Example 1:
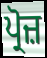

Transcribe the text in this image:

ਪ੍ਰੋਜ਼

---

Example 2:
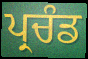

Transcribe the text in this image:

ਪ੍ਰਚੰਡ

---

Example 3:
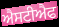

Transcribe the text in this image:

ਐਸਟੀਐਫ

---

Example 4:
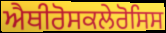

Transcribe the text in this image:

ਐਥੀਰੋਸਕਲੇਰੋਸਿਸ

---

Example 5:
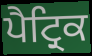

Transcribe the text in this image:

ਪੈਟ੍ਰਿਕ